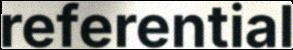
referential